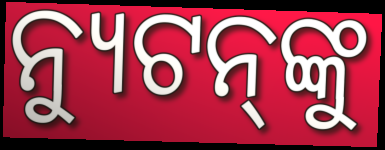
ନ୍ୟୁଟନ୍‌ଙ୍କୁ